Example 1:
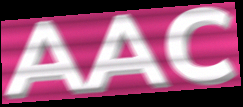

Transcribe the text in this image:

AAC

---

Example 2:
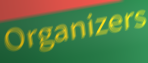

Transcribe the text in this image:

Organizers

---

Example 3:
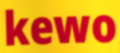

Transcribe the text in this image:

kewo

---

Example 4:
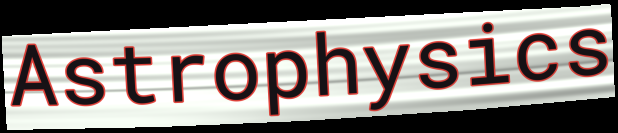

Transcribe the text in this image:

Astrophysics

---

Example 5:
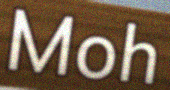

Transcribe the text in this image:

Moh